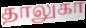
தாலுகா